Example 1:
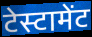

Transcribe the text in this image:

टेस्टामेंट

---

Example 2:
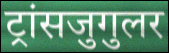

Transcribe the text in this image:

ट्रांसजुगुलर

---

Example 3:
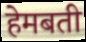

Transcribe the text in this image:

हेमबती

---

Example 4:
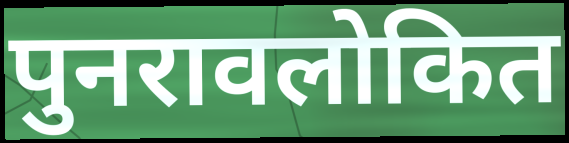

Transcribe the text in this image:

पुनरावलोकित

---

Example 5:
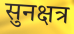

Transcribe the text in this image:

सुनक्षत्र